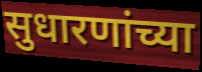
सुधारणांच्या